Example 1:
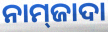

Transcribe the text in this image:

ନାମ୍‌ଜାଦା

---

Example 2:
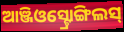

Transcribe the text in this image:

ଆଞ୍ଜିଓସ୍ଟ୍ରୋଙ୍ଗିଲସ୍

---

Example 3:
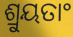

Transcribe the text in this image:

ଶ୍ରୁୟତାଂ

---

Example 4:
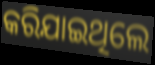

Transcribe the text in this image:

କରିଯାଇଥିଲେ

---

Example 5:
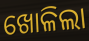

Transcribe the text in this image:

ଖୋଳିଲା